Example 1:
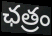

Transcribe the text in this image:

ఛత్రం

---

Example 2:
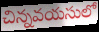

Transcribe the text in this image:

చిన్నవయసులో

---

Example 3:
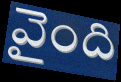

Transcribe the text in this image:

వైంది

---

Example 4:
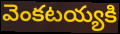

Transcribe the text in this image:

వెంకటయ్యకి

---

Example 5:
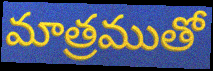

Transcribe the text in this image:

మాత్రముతో